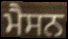
ਮੈਸਨ